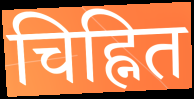
चिह्नित